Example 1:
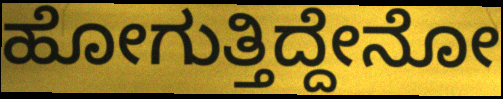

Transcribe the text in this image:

ಹೋಗುತ್ತಿದ್ದೇನೋ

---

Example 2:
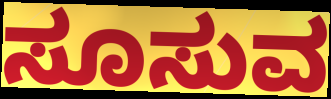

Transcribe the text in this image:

ಸೂಸುವ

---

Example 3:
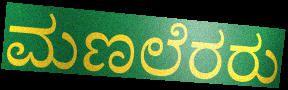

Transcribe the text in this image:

ಮಣಲೆರರು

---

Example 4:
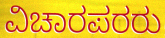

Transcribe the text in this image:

ವಿಚಾರಪರರು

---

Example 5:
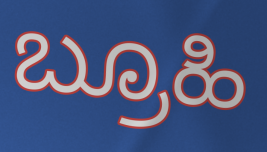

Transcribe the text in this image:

ಬ್ರೂಹಿ